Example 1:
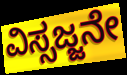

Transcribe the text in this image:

ವಿಸ್ಸಜ್ಜನೇ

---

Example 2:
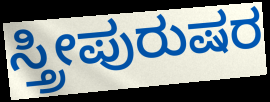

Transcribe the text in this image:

ಸ್ತ್ರೀಪುರುಷರ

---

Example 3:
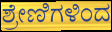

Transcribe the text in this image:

ಶ್ರೇಣಿಗಳಿಂದ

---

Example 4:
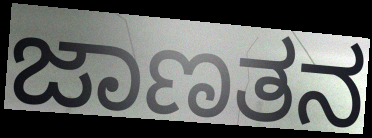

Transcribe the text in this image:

ಜಾಣತನ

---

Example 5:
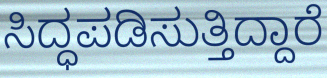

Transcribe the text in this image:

ಸಿದ್ಧಪಡಿಸುತ್ತಿದ್ದಾರೆ